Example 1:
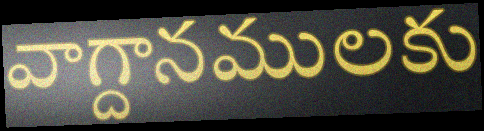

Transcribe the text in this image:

వాగ్దానములకు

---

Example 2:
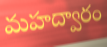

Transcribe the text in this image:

మహద్వారం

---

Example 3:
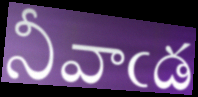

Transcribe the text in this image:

నీవాఁడ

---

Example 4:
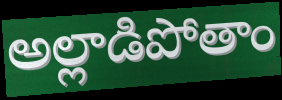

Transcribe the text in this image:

అల్లాడిపోతాం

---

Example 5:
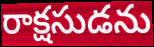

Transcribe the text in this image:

రాక్షసుడను